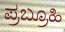
ಪ್ರಬ್ರೂಹಿ